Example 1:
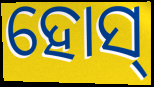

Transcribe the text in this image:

ହୋସ୍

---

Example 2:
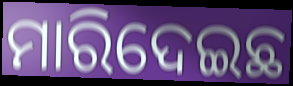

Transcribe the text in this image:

ମାରିଦେଇଛ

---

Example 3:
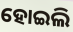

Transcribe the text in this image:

ହୋଇଲି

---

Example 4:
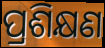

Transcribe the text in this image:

ପ୍ରଶିକ୍ଷଣ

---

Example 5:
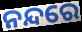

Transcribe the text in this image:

ନନ୍ଦରେ